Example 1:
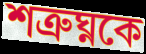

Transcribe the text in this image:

শত্রুঘ্নকে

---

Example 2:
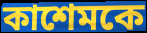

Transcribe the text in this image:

কাশেমকে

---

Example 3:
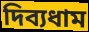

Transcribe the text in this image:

দিব্যধাম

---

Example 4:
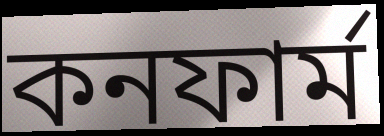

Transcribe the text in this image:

কনফার্ম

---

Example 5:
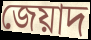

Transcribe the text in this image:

জেয়াদ